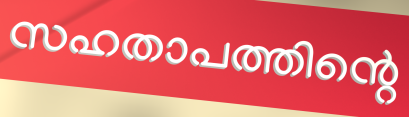
സഹതാപത്തിന്റെ